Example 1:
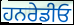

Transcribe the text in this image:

ਹਨਰੇਡੀਓ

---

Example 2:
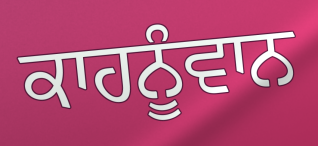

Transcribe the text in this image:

ਕਾਹਨੂੰਵਾਨ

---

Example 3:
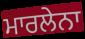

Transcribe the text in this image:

ਮਾਰਲੇਨਾ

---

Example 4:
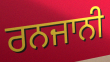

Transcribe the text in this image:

ਰਨਜਾਨੀ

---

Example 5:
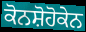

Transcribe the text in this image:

ਕੋਨਸ਼ੋਹੋਕੇਨ